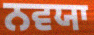
ਨਵਯਾ